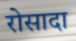
रोसादा